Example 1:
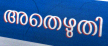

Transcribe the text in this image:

അതെഴുതി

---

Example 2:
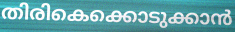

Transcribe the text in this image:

തിരികെക്കൊടുക്കാൻ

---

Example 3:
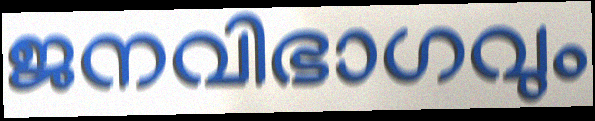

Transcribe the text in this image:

ജനവിഭാഗവും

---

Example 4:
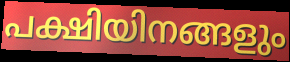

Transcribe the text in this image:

പക്ഷിയിനങ്ങളും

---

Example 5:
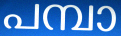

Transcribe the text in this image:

പമ്പാ